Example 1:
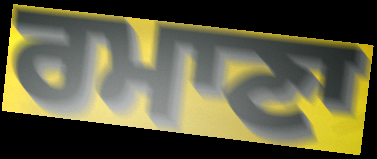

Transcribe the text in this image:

ਰਮਾਣਾ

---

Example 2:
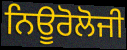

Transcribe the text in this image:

ਨਿਊਰੋਲੋਜੀ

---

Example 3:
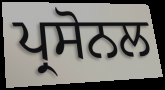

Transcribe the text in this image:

ਪ੍ਰਸੋਨਲ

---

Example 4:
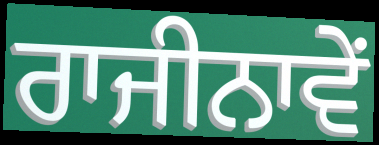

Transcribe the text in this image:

ਰਾਜੀਨਾਵੇਂ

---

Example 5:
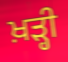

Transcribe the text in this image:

ਖ਼ੜ੍ਹੀ